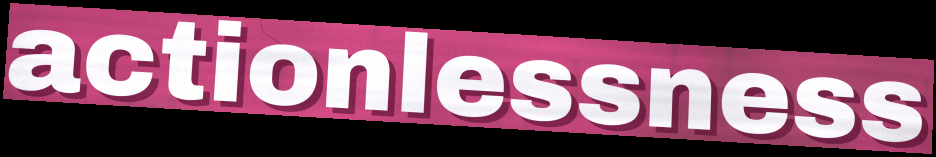
actionlessness